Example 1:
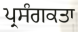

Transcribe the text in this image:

ਪ੍ਰਸੰਗਕਤਾ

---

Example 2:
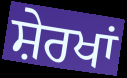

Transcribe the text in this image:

ਸ਼ੇਰਖਾਂ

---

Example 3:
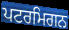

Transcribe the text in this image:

ਪਟਰਮਿਗਨ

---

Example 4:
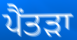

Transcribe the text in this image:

ਪੈਂਤੜਾ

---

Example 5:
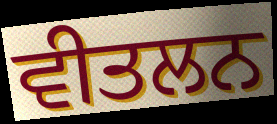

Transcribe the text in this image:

ਵੀਤਲਨ